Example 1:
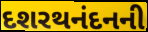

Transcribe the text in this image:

દશરથનંદનની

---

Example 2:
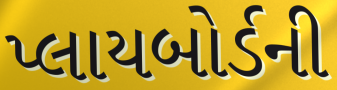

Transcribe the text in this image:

પ્લાયબોર્ડની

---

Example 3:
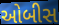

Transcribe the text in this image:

ઓબીસ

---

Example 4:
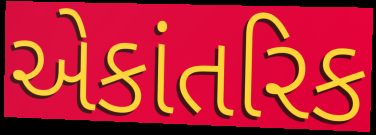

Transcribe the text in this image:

એકાંતરિક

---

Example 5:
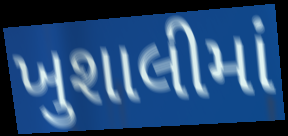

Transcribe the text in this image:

ખુશાલીમાં